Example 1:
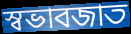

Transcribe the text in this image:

স্বভাবজাত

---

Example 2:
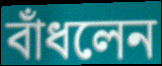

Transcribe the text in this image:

বাঁধলেন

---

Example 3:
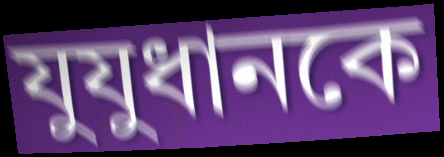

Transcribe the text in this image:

যুযুধানকে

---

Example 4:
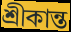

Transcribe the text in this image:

শ্রীকান্ত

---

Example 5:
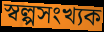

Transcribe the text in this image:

স্বল্পসংখ্যক